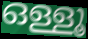
ഒള്ളൂ